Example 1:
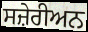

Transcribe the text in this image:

ਸਜ਼ੇਰੀਅਨ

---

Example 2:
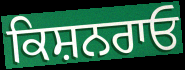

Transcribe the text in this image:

ਕਿਸ਼ਨਰਾਓ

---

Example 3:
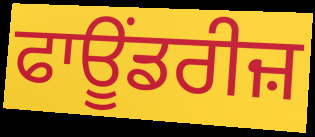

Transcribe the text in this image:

ਫਾਊਂਡਰੀਜ਼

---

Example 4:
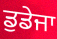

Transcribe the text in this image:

ਡੁਡੇਜਾ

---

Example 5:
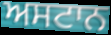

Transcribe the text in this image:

ਅਸਟਾਨ